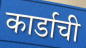
कार्डाची